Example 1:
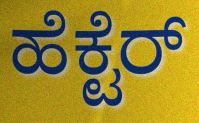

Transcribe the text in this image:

ಹೆಕ್ಟೆರ್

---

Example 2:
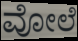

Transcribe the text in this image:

ವೋಲೆ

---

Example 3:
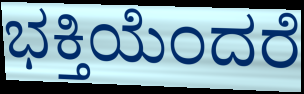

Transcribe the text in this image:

ಭಕ್ತಿಯೆಂದರೆ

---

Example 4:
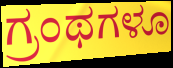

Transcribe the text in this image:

ಗ್ರಂಥಗಳೂ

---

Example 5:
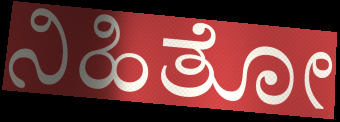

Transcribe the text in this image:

ನಿಹಿತೋ